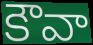
కౌవా